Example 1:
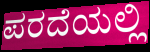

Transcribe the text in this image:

ಪರದೆಯಲ್ಲಿ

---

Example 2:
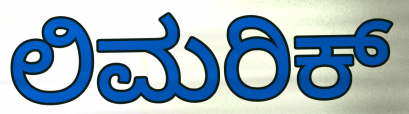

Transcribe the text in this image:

ಲಿಮರಿಕ್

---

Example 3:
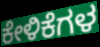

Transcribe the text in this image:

ಕೇಳಿಕೆಗಳ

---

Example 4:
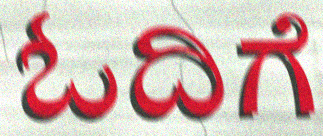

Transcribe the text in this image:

ಓದಿಗೆ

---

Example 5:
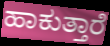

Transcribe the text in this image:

ಹಾಕುತ್ತಾರೆ